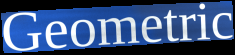
Geometric